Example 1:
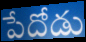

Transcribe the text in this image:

పేదోడు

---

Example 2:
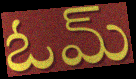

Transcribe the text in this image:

ఓమ్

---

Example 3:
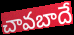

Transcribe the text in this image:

చావబాదే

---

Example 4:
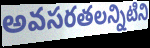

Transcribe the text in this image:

అవసరతలన్నిటిని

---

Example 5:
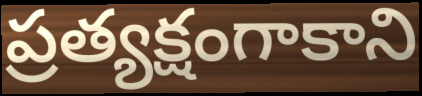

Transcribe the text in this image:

ప్రత్యక్షంగాకాని